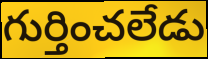
గుర్తించలేడు